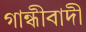
গান্ধীবাদী